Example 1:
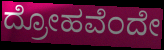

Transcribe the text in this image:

ದ್ರೋಹವೆಂದೇ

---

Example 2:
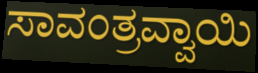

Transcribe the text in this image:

ಸಾವಂತ್ರವ್ವಾಯಿ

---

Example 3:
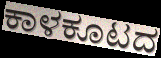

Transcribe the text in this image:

ಕಾಳಕೂಟದ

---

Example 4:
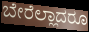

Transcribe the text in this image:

ಬೇರೆಲ್ಲಾದರೂ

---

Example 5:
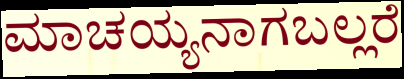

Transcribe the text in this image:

ಮಾಚಯ್ಯನಾಗಬಲ್ಲರೆ